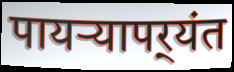
पायऱ्यापर्यंत